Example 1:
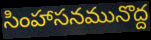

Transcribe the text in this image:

సింహాసనమునొద్ద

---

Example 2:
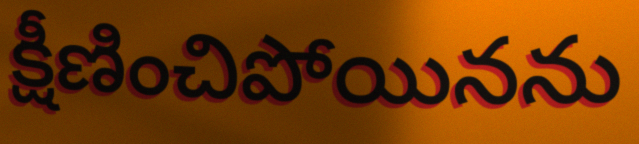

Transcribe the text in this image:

క్షీణించిపోయినను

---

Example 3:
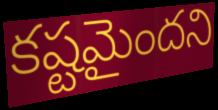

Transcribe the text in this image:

కష్టమైందని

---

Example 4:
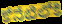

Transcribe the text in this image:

కోనేటిలోకి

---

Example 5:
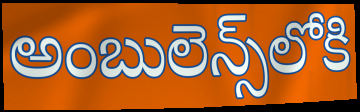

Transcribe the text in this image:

అంబులెన్స్‌లోకి